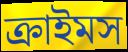
ক্রাইমস